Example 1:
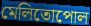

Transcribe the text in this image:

মেলিতোপোল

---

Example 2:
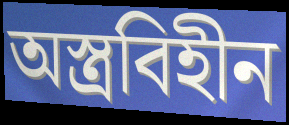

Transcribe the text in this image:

অস্ত্রবিহীন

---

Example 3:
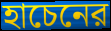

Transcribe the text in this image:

হাচেনের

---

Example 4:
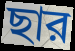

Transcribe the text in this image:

ছার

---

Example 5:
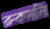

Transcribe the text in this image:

রুকমনি